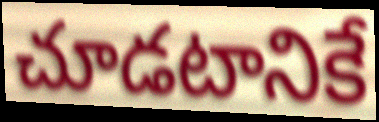
చూడటానికే